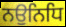
ਨਉਨਿਧਿ